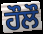
ਹੌਲੌ